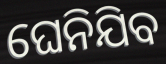
ଘେନିଯିବ